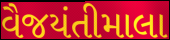
વૈજયંતીમાલા